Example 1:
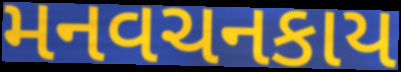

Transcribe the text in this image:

મનવચનકાય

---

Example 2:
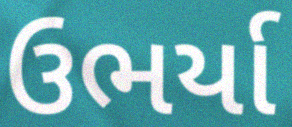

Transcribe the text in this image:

ઉભર્યા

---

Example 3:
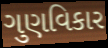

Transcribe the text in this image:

ગુણવિકાર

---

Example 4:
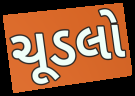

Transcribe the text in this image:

ચૂડલો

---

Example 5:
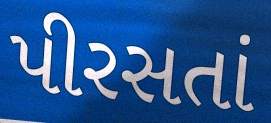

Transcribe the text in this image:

પીરસતાં